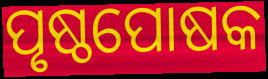
ପୃଷ୍ଠପୋଷକ